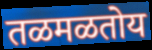
तळमळतोय